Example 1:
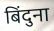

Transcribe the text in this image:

बिंदुना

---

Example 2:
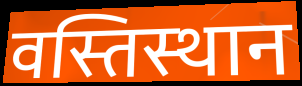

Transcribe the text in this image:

वस्तिस्थान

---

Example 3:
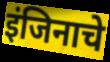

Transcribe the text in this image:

इंजिनाचे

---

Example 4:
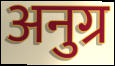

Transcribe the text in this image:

अनुग्र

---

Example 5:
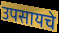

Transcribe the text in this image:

उपसायचे